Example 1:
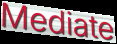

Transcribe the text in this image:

Mediate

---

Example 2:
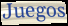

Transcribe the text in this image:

Juegos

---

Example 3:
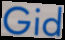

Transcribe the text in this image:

Gid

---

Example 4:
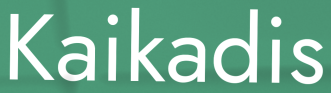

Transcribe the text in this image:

Kaikadis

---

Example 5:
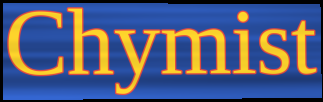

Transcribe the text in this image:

Chymist